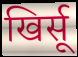
खिर्सू